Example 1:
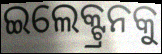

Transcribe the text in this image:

ଇଲେକ୍ଟ୍ରନକୁ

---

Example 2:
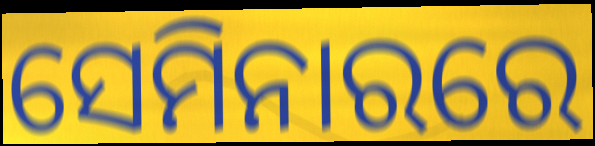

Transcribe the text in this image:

ସେମିନାରରେ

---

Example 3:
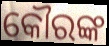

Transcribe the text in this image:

କୌରଙ୍କ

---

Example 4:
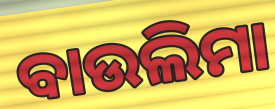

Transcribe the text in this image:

ବାଉଲିମା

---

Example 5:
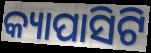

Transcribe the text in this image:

କ୍ୟାପାସିଟି